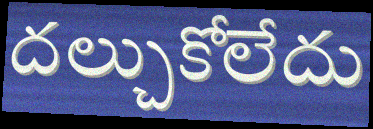
దల్చుకోలేదు